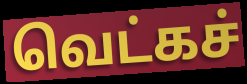
வெட்கச்